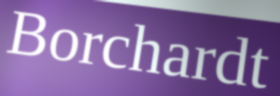
Borchardt